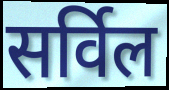
सर्विल